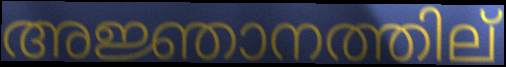
അജ്ഞാനത്തില്